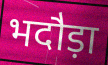
भदौड़ा